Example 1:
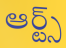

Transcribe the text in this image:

ఆర్ట్స్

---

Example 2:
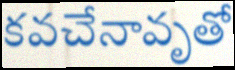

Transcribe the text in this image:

కవచేనావృతో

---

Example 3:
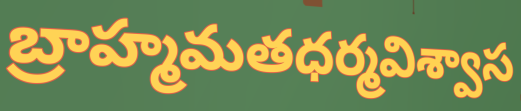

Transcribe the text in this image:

బ్రాహ్మమతధర్మవిశ్వాస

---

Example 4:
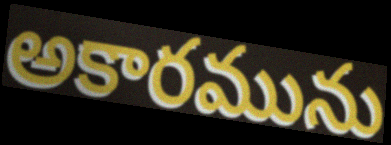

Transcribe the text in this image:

అకారమును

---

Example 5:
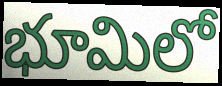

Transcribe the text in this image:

భూమిలో